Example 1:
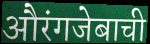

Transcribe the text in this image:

औरंगजेबाची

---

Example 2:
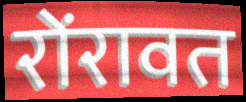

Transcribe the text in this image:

रोंरावत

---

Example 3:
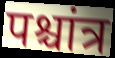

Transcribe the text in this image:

पश्चांत्र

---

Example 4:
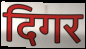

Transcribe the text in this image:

दिगर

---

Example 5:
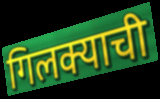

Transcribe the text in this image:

गिलक्याची